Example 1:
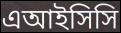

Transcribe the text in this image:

এআইসিসি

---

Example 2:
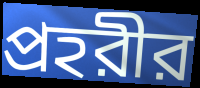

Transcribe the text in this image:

প্রহরীর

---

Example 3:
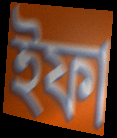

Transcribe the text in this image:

ইফা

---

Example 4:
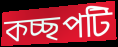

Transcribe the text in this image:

কচ্ছপটি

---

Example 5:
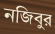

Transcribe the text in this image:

নজিবুর